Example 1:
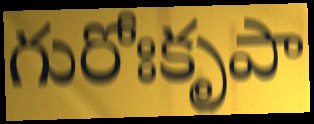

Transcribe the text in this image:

గురోఃకృపా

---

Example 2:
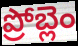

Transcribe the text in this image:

ప్రోబ్లెం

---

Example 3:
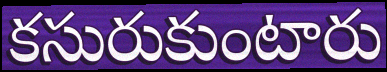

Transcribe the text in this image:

కసురుకుంటారు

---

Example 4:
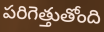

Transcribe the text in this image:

పరిగెత్తుతోంది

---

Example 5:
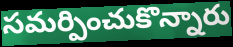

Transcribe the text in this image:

సమర్పించుకొన్నారు